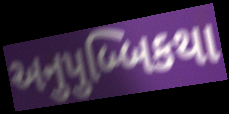
અનુપુબ્બિકથા